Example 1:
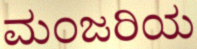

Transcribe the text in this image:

ಮಂಜರಿಯ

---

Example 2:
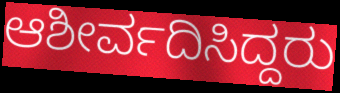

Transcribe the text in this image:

ಆಶೀರ್ವದಿಸಿದ್ದರು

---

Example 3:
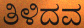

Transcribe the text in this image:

ತಿಳಿದವ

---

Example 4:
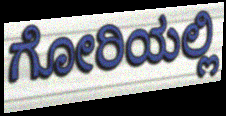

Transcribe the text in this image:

ಗೋರಿಯಲ್ಲಿ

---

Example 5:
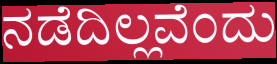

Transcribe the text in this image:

ನಡೆದಿಲ್ಲವೆಂದು